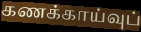
கணக்காய்வுப்